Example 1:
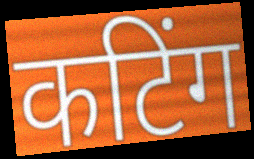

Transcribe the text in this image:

कटिंग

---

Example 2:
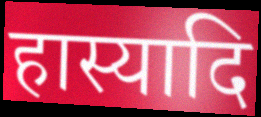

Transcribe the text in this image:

हास्यादि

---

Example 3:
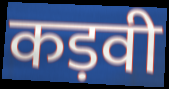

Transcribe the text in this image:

कड़वी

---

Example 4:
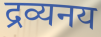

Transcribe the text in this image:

द्रव्यनय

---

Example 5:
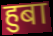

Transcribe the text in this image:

हुबा